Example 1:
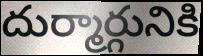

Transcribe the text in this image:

దుర్మార్గునికి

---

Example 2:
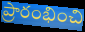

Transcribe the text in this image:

ప్రారంభించి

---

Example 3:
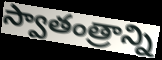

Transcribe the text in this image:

స్వాతంత్రాన్ని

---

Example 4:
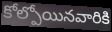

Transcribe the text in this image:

కోల్పోయినవారికి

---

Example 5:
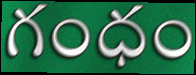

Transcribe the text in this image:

గంధం